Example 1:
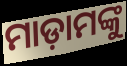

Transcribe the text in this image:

ମାଡ଼ାମଙ୍କୁ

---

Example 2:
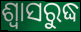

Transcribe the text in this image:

ଶ୍ୱାସରୁଦ୍ଧ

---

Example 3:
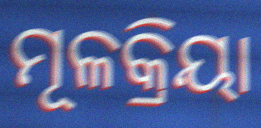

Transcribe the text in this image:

ମୂଳକ୍ରିୟା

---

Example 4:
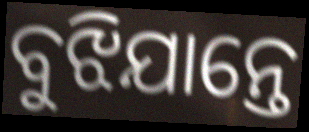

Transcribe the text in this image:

ବୁଝିଯାନ୍ତେ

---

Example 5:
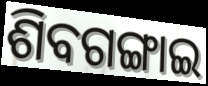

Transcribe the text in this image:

ଶିବଗଙ୍ଗାଇ